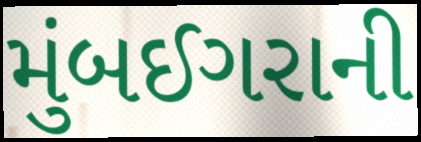
મુંબઈગરાની